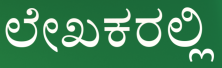
ಲೇಖಕರಲ್ಲಿ